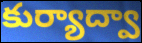
కుర్యాద్వా